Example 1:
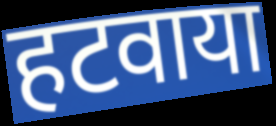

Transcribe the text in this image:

हटवाया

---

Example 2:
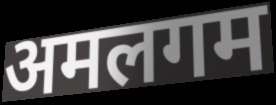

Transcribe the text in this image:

अमलगम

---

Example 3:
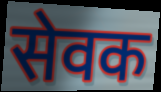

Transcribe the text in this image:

सेवक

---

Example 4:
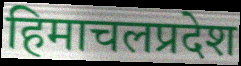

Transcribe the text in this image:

हिमाचलप्रदेश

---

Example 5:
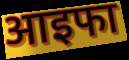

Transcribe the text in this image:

आइफा